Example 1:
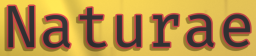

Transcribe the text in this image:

Naturae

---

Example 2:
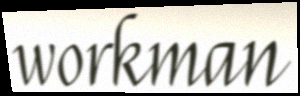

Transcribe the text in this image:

workman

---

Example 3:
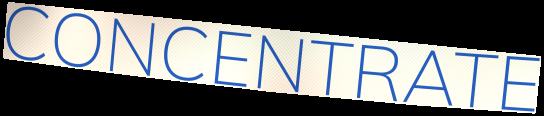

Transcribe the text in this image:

CONCENTRATE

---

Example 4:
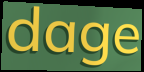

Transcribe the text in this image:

dage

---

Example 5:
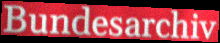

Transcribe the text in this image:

Bundesarchiv